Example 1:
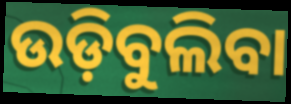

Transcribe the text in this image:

ଉଡ଼ିବୁଲିବା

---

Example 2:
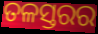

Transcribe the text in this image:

ତଳସ୍ତରର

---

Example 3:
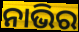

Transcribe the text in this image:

ନାଭିର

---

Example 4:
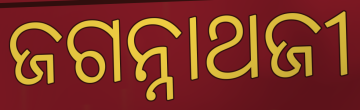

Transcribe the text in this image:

ଜଗନ୍ନାଥଜୀ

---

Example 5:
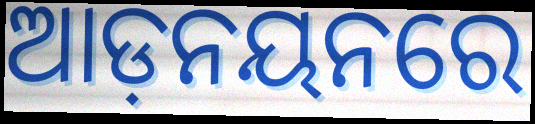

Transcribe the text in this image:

ଆଡ଼ନୟନରେ